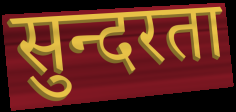
सुन्दरता